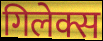
गिलेक्स